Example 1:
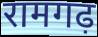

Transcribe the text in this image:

रामगढ़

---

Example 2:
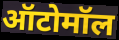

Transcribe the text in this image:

ऑटोमॉल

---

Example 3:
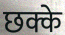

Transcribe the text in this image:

छक्के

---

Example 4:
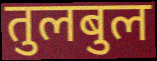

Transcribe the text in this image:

तुलबुल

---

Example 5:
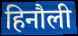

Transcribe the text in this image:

हिनौली